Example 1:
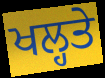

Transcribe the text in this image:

ਖਲ੍ਹਤੇ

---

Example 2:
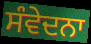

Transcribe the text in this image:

ਸੰਵੇਦਨਾ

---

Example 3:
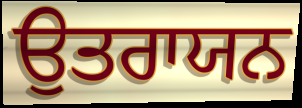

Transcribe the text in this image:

ਉਤਰਾਯਨ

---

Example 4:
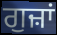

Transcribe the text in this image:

ਗੁਜ਼ਾਂ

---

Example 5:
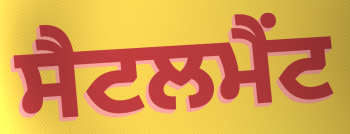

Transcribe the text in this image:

ਸੈਟਲਮੈਂਟ